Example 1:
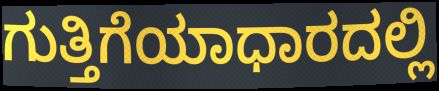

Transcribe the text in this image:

ಗುತ್ತಿಗೆಯಾಧಾರದಲ್ಲಿ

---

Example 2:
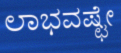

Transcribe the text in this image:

ಲಾಭವಷ್ಟೇ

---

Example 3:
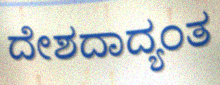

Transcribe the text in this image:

ದೇಶದಾದ್ಯಂತ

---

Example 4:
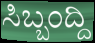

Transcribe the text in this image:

ಸಿಬ್ಬಂದ್ದಿ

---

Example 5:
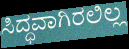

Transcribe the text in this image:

ಸಿದ್ಧವಾಗಿರಲಿಲ್ಲ